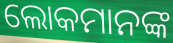
ଲୋକମାନଙ୍କ